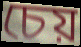
চেয়